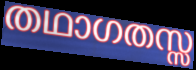
തഥാഗതസ്സ